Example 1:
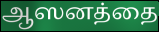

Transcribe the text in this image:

ஆஸனத்தை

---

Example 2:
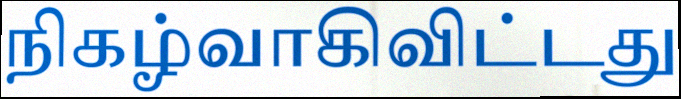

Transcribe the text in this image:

நிகழ்வாகிவிட்டது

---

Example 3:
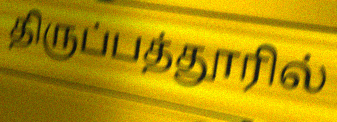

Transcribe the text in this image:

திருப்பத்தூரில்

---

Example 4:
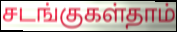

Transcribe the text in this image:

சடங்குகள்தாம்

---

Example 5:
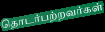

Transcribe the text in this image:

தொடர்பற்றவர்கள்